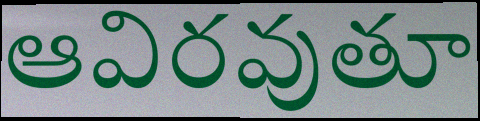
ఆవిరవుతూ